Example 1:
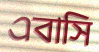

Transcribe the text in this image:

এবাসি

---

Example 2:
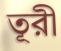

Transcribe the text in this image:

তূরী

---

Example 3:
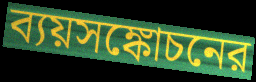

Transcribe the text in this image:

ব্যয়সঙ্কোচনের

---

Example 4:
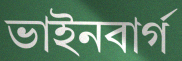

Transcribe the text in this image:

ভাইনবার্গ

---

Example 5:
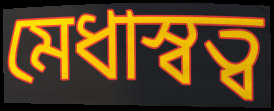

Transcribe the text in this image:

মেধাস্বত্ব